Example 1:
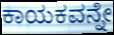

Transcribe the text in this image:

ಕಾಯಕವನ್ನೇ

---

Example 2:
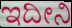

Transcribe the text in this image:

ಇದೀನಿ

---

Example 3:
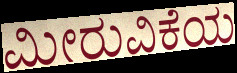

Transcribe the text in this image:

ಮೀರುವಿಕೆಯ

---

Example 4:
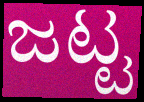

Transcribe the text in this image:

ಜಟ್ಟ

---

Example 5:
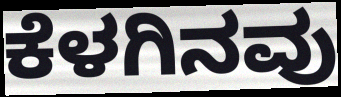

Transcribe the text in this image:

ಕೆಳಗಿನವು